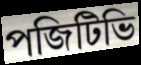
পজিটিভি